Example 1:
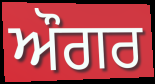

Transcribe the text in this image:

ਔਗਰ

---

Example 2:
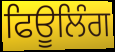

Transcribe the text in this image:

ਫਿਊਲਿੰਗ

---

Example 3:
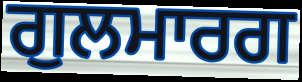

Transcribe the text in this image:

ਗੁਲਮਾਰਗ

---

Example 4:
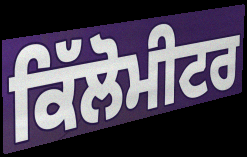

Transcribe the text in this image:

ਕਿੱਲੋਮੀਟਰ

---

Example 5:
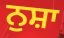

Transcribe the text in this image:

ਨੁਸ਼ਾ